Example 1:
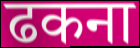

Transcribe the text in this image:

ढकना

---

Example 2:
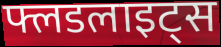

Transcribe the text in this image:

फ्लडलाइट्स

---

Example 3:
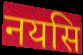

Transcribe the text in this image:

नयसि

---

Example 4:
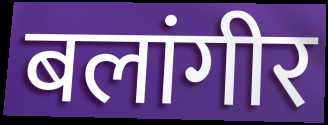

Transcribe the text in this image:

बलांगीर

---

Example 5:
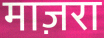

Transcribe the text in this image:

माज़रा